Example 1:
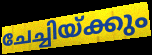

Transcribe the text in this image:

ചേച്ചിയ്ക്കും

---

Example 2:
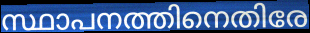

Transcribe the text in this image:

സ്ഥാപനത്തിനെതിരേ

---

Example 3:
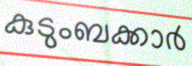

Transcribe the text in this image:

കുടുംബക്കാർ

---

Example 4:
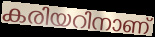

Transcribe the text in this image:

കരിയറിനാണ്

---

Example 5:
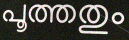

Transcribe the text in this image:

പൂത്തതും